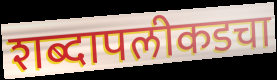
शब्दापलीकडचा